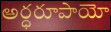
అర్ధరూపాయో